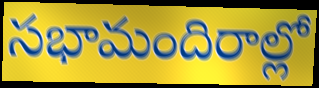
సభామందిరాల్లో